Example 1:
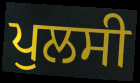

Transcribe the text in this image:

ਪੁਲਸੀ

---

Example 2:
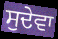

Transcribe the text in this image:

ਸੁਦੇਵਾ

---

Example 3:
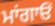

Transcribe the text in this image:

ਮਾਂਗਾਓਂ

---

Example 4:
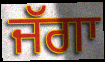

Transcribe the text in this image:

ਜੱਗਾ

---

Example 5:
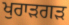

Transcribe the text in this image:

ਖੁਰਾੜਗੜ